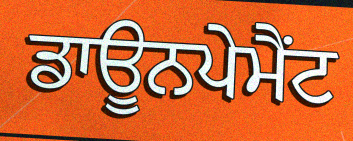
ਡਾਊਨਪੇਮੈਂਟ